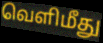
வெளிமீது